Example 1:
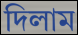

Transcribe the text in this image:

দিলাম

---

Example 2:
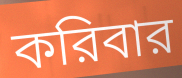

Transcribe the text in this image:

করিবার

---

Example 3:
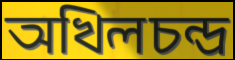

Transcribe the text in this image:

অখিলচন্দ্র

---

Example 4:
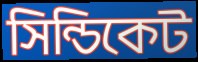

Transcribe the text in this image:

সিন্ডিকেট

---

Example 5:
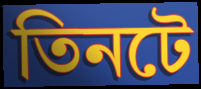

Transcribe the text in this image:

তিনটে